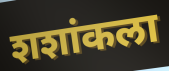
शशांकला